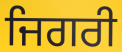
ਜਿਗਰੀ